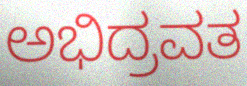
ಅಭಿದ್ರವತ